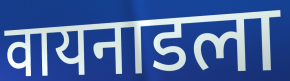
वायनाडला